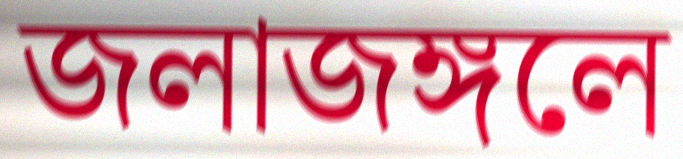
জলাজঙ্গলে